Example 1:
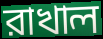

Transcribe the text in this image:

রাখাল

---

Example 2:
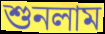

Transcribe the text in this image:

শুনলাম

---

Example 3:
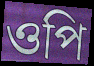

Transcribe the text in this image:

ওপি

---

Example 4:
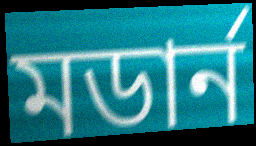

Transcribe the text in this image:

মডার্ন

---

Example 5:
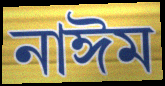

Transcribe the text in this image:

নাঈম